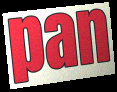
pan